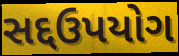
સદ્દઉપયોગ